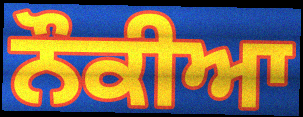
ਨੌਕੀਆ